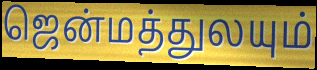
ஜென்மத்துலயும்